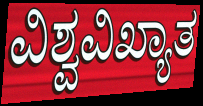
ವಿಶ್ವವಿಖ್ಯಾತ